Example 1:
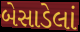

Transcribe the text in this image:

બેસાડેલાં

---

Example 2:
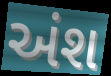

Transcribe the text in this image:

અંશ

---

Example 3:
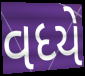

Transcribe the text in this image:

વધ્યે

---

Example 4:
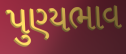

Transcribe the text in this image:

પુણ્યભાવ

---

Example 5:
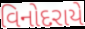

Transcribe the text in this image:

વિનોદરાયે